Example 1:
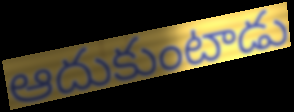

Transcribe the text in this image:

ఆదుకుంటాడు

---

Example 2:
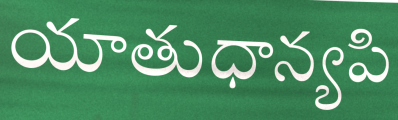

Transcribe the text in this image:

యాతుధాన్యపి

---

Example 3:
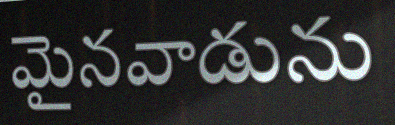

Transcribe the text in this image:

మైనవాడును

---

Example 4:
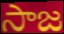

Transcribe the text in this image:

సాజ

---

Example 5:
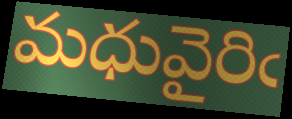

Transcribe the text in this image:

మధువైరిఁ